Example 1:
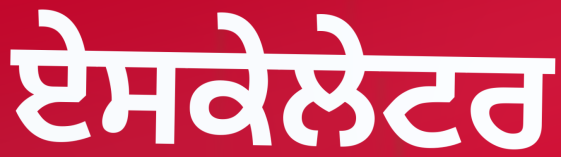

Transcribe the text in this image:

ਏਸਕੇਲੇਟਰ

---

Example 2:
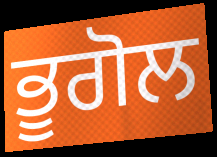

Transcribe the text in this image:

ਭੂਗੋਲ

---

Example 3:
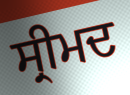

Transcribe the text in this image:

ਸ੍ਰੀਮਦ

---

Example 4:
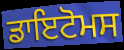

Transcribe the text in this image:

ਡਾਇਟੋਮਸ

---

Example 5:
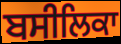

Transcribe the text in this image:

ਬਸੀਲਿਕਾ